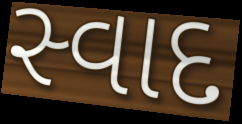
સ્વાદ